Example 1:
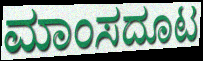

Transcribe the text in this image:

ಮಾಂಸದೂಟ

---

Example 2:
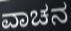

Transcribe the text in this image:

ವಾಚನ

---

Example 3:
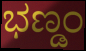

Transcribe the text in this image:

ಭಣ್ಡಂ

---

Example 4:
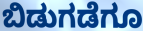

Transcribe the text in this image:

ಬಿಡುಗಡೆಗೂ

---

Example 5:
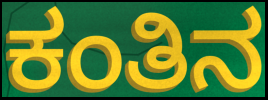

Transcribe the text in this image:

ಕಂತಿನ